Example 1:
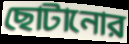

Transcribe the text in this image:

ছোটানোর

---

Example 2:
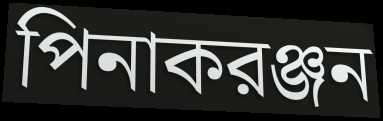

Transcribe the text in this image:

পিনাকরঞ্জন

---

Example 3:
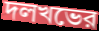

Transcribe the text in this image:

দলখভের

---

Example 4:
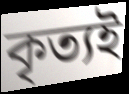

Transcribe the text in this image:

কৃত্যই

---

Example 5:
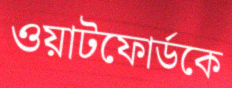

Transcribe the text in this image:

ওয়াটফোর্ডকে